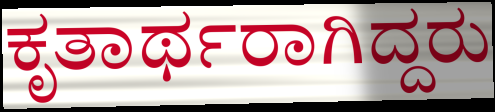
ಕೃತಾರ್ಥರಾಗಿದ್ದರು